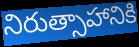
నిరుత్సాహానికి